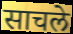
साचले